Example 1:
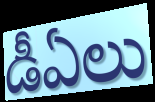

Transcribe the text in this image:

డీఏలు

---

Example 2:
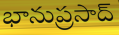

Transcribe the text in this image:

భానుప్రసాద్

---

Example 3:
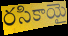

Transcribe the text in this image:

రసికాయై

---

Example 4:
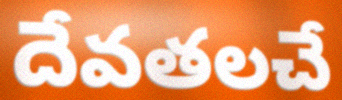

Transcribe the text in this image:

దేవతలచే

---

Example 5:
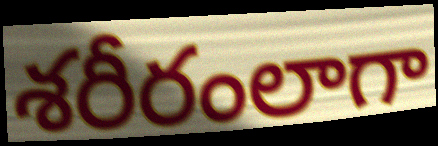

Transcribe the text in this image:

శరీరంలాగా